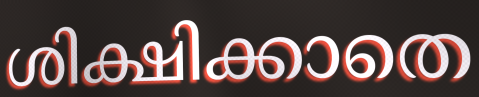
ശിക്ഷിക്കാതെ